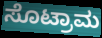
ಸೊಟ್ರಾಮ